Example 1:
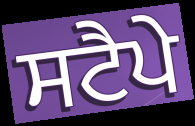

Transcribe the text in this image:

ਸਟੈਪੇ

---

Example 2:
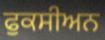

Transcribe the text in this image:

ਫੁਕਸੀਅਨ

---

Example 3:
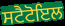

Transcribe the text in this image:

ਸਟੈਟੋਇਲ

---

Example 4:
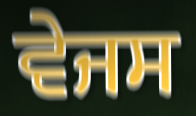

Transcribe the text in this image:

ਵੇਜਸ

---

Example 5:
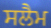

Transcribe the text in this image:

ਸਲੈਮ